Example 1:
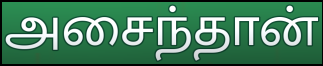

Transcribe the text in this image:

அசைந்தான்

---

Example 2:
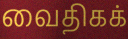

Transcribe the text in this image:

வைதிகக்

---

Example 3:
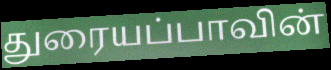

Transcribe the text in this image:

துரையப்பாவின்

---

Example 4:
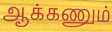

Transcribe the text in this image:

ஆக்கணும்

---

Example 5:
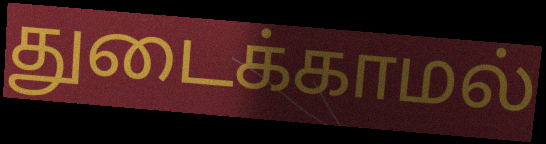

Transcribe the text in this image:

துடைக்காமல்